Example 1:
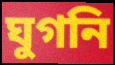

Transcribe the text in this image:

ঘুগনি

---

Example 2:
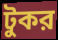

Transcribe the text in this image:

টুকর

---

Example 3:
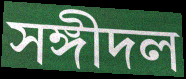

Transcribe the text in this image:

সঙ্গীদল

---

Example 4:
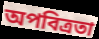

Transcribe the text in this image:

অপবিত্রতা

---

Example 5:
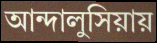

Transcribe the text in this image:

আন্দালুসিয়ায়